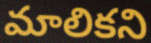
మాలికని